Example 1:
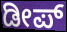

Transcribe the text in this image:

ಡೀಪ್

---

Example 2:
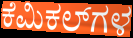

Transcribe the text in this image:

ಕೆಮಿಕಲ್‌ಗಳ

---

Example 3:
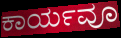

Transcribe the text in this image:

ಕಾರ್ಯವೂ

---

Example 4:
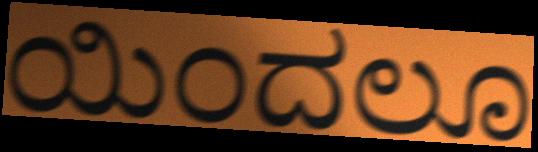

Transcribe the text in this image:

ಯಿಂದಲೂ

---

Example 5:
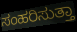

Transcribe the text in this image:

ಸಂಹರಿಸುತ್ತಾ